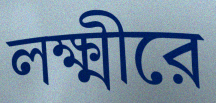
লক্ষ্মীরে